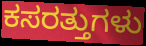
ಕಸರತ್ತುಗಳು